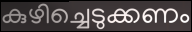
കുഴിച്ചെടുക്കണം